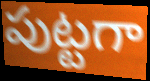
పుట్టగా